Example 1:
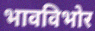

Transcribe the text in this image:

भावविभोर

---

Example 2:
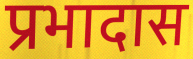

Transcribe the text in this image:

प्रभादास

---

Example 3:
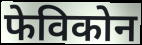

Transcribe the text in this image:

फेविकोन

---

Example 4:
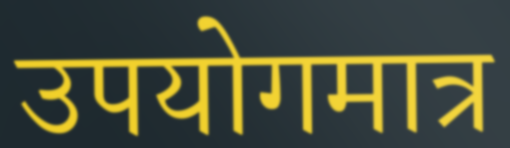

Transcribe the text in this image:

उपयोगमात्र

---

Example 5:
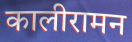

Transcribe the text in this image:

कालीरामन